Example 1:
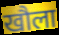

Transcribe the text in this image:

खौला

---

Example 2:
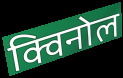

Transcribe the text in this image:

क्विनोल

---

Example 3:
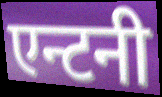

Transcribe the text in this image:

एन्टनी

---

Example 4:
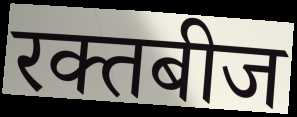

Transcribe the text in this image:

रक्तबीज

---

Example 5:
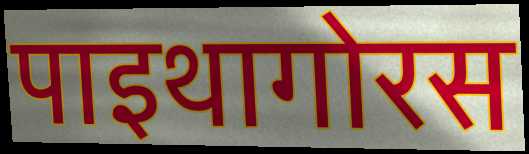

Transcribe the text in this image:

पाइथागोरस